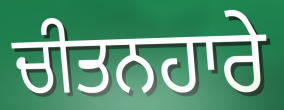
ਚੀਤਨਹਾਰੇ